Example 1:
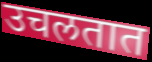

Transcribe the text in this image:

उचलतात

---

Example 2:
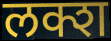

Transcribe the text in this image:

लक्श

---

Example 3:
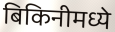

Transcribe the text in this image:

बिकिनीमध्ये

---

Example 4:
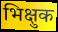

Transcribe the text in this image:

भिक्षुक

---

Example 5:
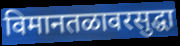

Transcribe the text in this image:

विमानतळावरसुद्धा